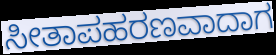
ಸೀತಾಪಹರಣವಾದಾಗ